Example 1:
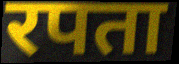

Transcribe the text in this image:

रपता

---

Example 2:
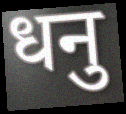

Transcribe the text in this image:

धनु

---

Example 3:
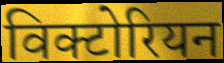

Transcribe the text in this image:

विक्टोरियन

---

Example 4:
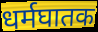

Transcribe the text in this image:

धर्मघातक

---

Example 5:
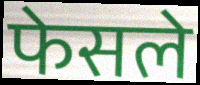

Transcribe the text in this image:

फेसले